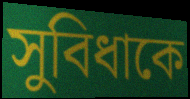
সুবিধাকে